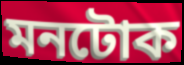
মনটোক